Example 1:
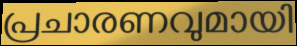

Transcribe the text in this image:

പ്രചാരണവുമായി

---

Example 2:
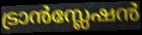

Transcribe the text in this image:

ട്രാൻസ്ലേഷൻ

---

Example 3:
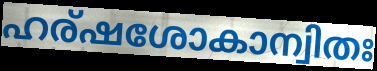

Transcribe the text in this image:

ഹര്ഷശോകാന്വിതഃ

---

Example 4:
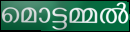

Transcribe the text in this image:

മൊട്ടമ്മൽ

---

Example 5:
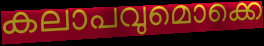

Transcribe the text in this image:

കലാപവുമൊക്കെ